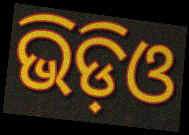
ଭିଡ଼ିଓ